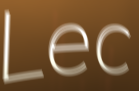
Lec